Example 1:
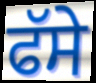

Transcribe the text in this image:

ਫੱਸੇ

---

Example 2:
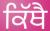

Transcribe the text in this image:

ਕਿੱਥੈ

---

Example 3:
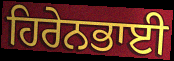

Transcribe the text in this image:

ਹਿਰੇਨਭਾਈ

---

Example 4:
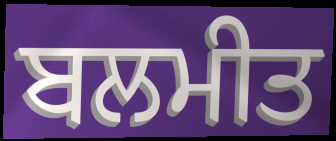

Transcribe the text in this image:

ਬਲਮੀਤ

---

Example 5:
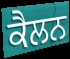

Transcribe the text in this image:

ਕੈਲਨ